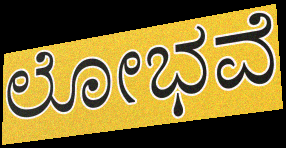
ಲೋಭವೆ